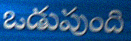
ఒడుపుంది